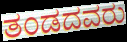
ತಂಡದವರು